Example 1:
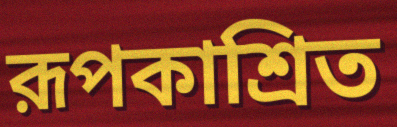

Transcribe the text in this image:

রূপকাশ্রিত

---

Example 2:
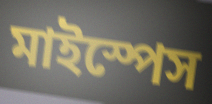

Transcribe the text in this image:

মাইস্পেস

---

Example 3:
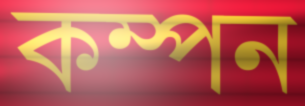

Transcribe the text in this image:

কম্পন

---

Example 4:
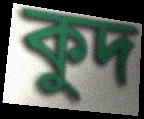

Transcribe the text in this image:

কুদ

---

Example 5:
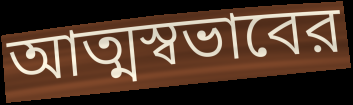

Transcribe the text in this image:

আত্মস্বভাবের